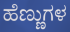
ಹೆಣ್ಣುಗಳ